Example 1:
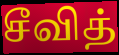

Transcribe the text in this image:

சீவித்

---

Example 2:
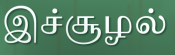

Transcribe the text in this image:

இச்சூழல்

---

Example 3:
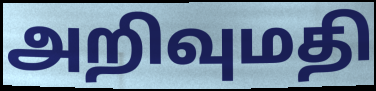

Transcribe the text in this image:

அறிவுமதி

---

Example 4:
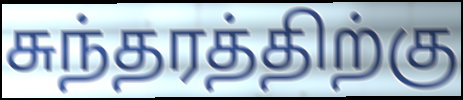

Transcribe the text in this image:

சுந்தரத்திற்கு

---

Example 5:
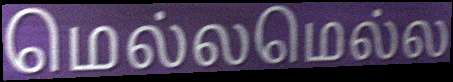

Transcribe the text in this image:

மெல்லமெல்ல